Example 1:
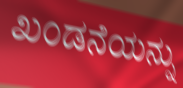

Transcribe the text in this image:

ಖಂಡನೆಯನ್ನು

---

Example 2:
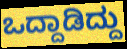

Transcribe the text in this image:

ಒದ್ದಾಡಿದ್ದು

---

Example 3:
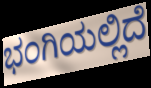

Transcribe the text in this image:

ಭಂಗಿಯಲ್ಲಿದೆ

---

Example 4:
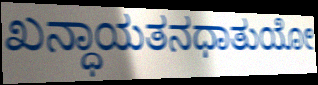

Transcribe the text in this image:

ಖನ್ಧಾಯತನಧಾತುಯೋ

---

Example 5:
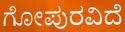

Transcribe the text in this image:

ಗೋಪುರವಿದೆ